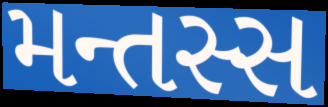
મન્તસ્સ